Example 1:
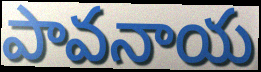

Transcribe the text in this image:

పావనాయ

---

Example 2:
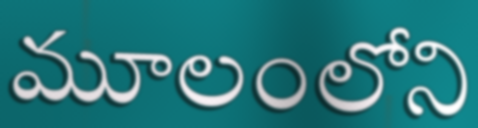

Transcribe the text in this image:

మూలంలోని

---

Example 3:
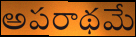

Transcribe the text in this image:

అపరాథమే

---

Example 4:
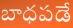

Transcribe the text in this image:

బాధపడే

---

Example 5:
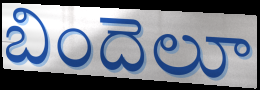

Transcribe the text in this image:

బిందెలూ